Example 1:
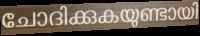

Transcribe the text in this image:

ചോദിക്കുകയുണ്ടായി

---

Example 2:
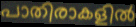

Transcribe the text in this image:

പാതിരാകളിൽ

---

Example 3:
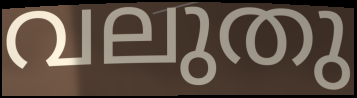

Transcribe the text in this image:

വലുതു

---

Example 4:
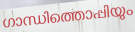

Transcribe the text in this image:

ഗാന്ധിത്തൊപ്പിയും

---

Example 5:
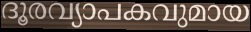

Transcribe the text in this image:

ദൂരവ്യാപകവുമായ